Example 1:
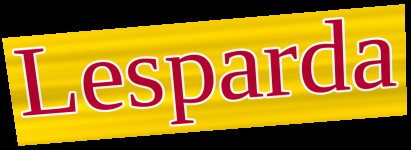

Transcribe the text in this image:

Lesparda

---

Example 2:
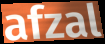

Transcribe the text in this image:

afzal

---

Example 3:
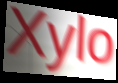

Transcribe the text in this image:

Xylo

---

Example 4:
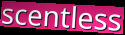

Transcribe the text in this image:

scentless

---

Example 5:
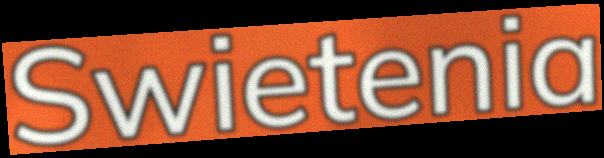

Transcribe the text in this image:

Swietenia